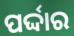
ପର୍ଦ୍ଦାର